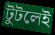
টুটলেই